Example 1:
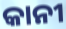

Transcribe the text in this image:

କାନୀ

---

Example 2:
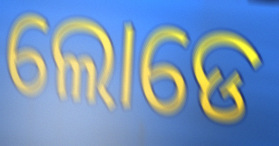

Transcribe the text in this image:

ଲୋଡେ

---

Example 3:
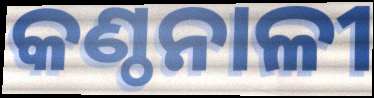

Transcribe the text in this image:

କଣ୍ଠନାଳୀ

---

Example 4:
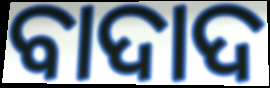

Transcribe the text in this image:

ବାଦାଦ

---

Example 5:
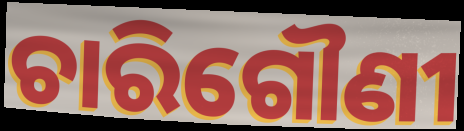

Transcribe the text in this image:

ଚାରିଗୌଣୀ